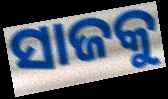
ସାଜକୁ